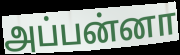
அப்பன்னா